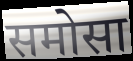
समोसा